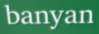
banyan